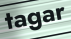
tagar